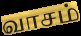
வாசம்